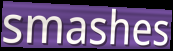
smashes